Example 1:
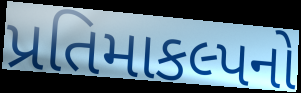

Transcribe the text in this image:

પ્રતિમાકલ્પનો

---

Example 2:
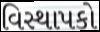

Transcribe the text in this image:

વિસ્થાપકો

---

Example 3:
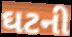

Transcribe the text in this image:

ઘટની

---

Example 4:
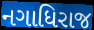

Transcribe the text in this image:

નગાધિરાજ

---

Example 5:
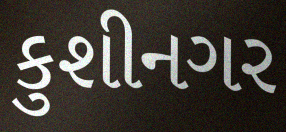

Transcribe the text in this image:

કુશીનગર